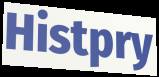
Histpry